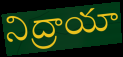
నిద్రాయా